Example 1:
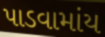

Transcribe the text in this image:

પાડવામાંય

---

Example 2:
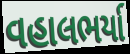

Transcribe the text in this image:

વહાલભર્યા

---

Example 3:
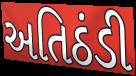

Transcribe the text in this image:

અતિઠંડી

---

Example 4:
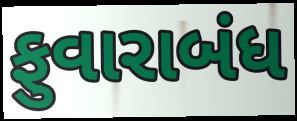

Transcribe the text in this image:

ફુવારાબંધ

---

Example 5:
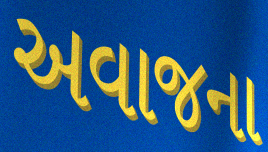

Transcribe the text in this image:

અવાજના